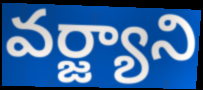
వర్జ్యాని